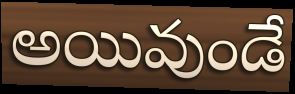
అయివుండే